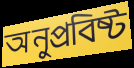
অনুপ্রবিষ্ট